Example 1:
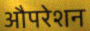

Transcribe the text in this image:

औपरेशन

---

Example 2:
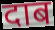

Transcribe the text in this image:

दाब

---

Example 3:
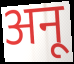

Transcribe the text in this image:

अनू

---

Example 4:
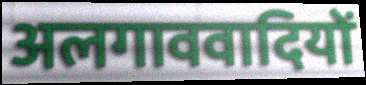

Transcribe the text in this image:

अलगाववादियों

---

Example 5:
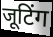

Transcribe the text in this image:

जूटिंग